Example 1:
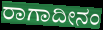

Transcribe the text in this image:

ರಾಗಾದೀನಂ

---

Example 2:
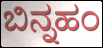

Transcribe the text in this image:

ಬಿನ್ನಹಂ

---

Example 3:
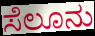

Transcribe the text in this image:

ಸೆಲೂನು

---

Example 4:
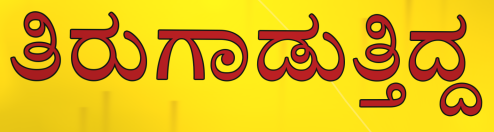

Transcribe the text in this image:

ತಿರುಗಾಡುತ್ತಿದ್ದ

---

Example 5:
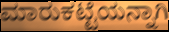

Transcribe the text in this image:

ಮಾರುಕಟ್ಟೆಯನ್ನಾಗಿ